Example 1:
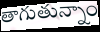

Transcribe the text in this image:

తాగుతున్నాం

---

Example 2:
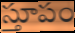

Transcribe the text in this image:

స్తూపం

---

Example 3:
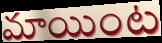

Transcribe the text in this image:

మాయింట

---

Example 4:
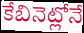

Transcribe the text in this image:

కేబినెట్లోనే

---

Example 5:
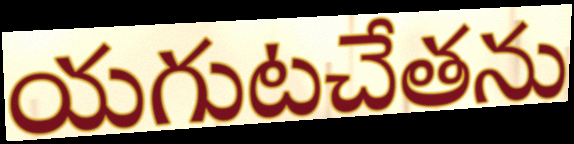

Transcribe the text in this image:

యగుటచేతను